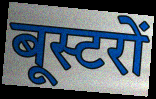
बूस्टरों